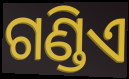
ଗଣ୍ଡିଏ